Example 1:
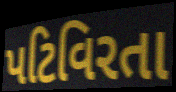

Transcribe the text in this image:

પટિવિરતા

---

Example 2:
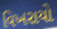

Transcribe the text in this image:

વિખરાયો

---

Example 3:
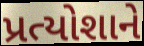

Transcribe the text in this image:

પ્રત્યોશાને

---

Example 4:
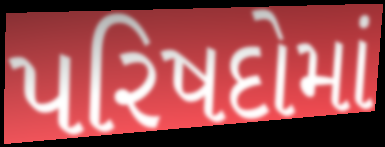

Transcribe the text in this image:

પરિષદોમાં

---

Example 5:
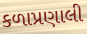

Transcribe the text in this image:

કળાપ્રણાલી